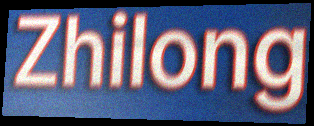
Zhilong